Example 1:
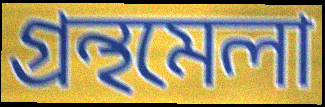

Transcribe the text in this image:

গ্ৰন্থমেলা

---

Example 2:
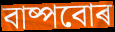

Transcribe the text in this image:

বাষ্পবোৰ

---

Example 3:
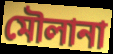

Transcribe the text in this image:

মৌলানা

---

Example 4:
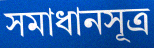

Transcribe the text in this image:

সমাধানসূত্ৰ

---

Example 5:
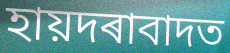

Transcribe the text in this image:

হায়দৰাবাদত